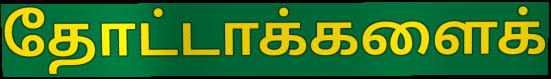
தோட்டாக்களைக்